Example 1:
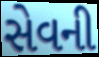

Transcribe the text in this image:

સેવની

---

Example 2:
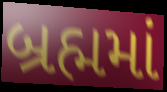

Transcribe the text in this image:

બ્રહ્મમાં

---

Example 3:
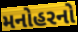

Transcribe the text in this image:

મનોહરનો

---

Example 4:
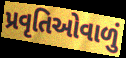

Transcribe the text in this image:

પ્રવૃતિઓવાળું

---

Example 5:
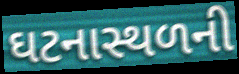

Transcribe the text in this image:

ઘટનાસ્થળની